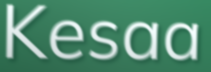
Kesaa